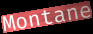
Montane